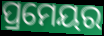
ପ୍ରମେୟର